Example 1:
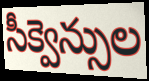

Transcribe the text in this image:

సీక్వెన్సుల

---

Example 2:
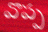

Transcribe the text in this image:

వొప్ప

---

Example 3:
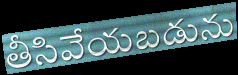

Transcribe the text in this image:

తీసివేయబడును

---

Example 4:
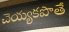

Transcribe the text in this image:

చెయ్యకపొతే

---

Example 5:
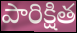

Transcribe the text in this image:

పారిక్షిత